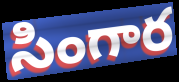
సింగార